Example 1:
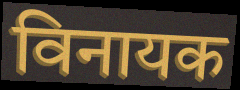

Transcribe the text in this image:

विनायक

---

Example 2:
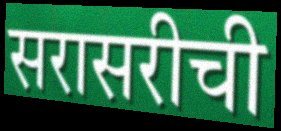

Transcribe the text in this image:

सरासरीची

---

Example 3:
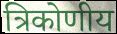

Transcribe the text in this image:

त्रिकोणीय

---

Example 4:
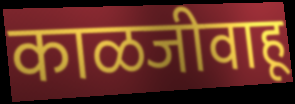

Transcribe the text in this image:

काळजीवाहू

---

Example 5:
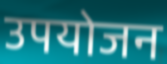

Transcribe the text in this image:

उपयोजन